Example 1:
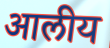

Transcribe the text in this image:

आलीय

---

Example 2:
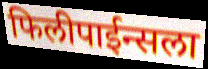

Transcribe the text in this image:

फिलीपाईन्सला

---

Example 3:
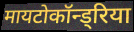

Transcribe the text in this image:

मायटोकॉन्ड्रिया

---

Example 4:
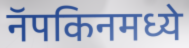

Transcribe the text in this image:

नॅपकिनमध्ये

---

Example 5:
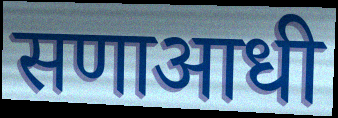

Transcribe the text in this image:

सणाआधी